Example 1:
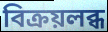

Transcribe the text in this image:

বিক্রয়লব্ধ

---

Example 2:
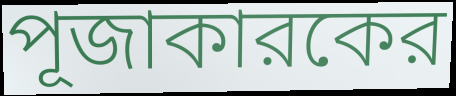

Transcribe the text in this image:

পূজাকারকের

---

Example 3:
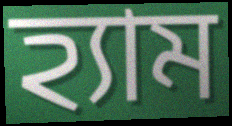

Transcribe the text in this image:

হ্যাম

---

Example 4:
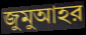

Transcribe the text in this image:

জুমুআহর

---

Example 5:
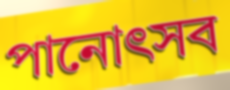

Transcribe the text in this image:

পানোৎসব